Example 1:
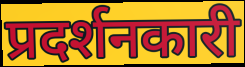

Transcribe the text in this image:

प्रदर्शनकारी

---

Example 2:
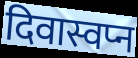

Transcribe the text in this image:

दिवास्‍वप्‍न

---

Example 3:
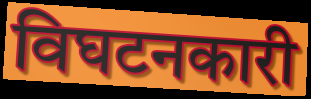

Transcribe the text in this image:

विघटनकारी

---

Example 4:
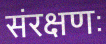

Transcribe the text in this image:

संरक्षणः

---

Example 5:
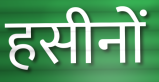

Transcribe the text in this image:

हसीनों